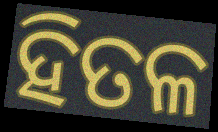
ହିତଳ